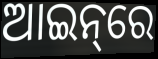
ଆଇନ୍‌ରେ